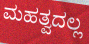
ಮಹತ್ವದಲ್ಲ